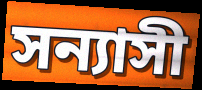
সন্যাসী